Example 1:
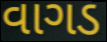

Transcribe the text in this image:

વાગડ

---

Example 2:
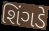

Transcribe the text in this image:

શિંગડે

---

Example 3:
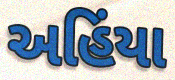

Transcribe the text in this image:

અહિંયા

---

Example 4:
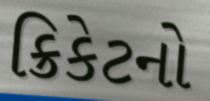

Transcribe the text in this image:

ક્રિકેટનો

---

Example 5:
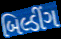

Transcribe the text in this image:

બિલ્ડીંગ